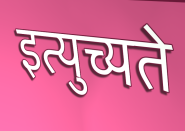
इत्युच्यते